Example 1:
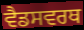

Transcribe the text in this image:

ਵੈਡਸਵਰਥ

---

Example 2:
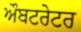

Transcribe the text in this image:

ਔਬਟਰੇਟਰ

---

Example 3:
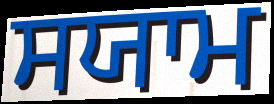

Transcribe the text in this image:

ਸਯਾਮ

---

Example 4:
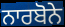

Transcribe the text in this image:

ਨਾਰਬੋਨੇ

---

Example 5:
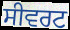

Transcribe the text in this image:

ਸੀਵਰਟ